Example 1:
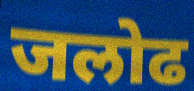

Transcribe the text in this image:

जलोढ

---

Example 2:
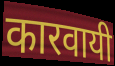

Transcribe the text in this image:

कारवायी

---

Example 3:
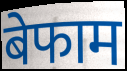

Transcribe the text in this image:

बेफाम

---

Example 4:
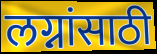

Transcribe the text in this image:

लग्नांसाठी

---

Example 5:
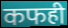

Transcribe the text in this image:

कफही